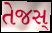
તેજસ્